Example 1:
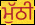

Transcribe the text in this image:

ਮੁੱਠੀ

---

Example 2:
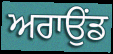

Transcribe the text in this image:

ਅਰਾਉਂਡ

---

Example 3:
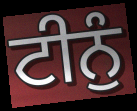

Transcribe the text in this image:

ਟੀਨੁੰ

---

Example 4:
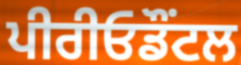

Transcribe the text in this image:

ਪੀਰੀਓਡੌਂਟਲ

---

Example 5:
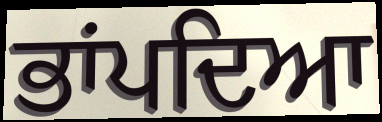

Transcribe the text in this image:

ਭਾਂਪਦਿਆ